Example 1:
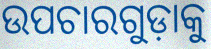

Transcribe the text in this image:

ଉପଚାରଗୁଡ଼ାକୁ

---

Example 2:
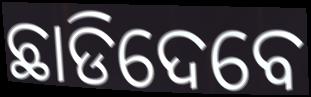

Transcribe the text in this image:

ଛାଡିଦେବେ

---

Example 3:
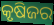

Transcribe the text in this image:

କୃଷିଜର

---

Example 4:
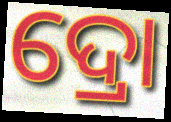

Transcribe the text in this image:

ଦ୍ରୋ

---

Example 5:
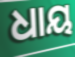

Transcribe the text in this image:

ଧାୟ